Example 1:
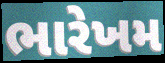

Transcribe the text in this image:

ભારેખમ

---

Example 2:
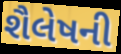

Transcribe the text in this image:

શૈલેષની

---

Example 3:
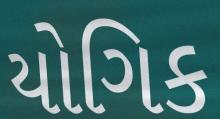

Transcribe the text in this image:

યોગિક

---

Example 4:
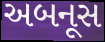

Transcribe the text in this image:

અબનૂસ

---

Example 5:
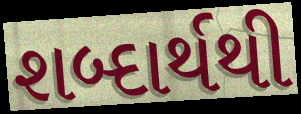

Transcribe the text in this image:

શબ્દાર્થથી